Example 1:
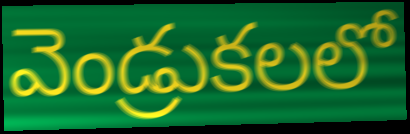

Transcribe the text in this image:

వెండ్రుకలలో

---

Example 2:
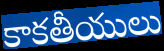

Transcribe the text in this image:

కాకతీయులు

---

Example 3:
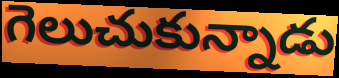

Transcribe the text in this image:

గెలుచుకున్నాడు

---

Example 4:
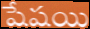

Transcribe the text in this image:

షేషయి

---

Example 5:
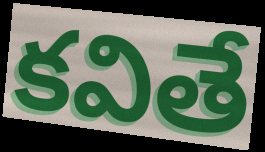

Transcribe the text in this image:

కవితే